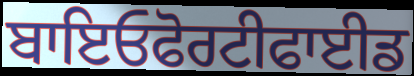
ਬਾਇਓਫੋਰਟੀਫਾਈਡ